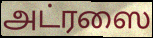
அட்ரஸை